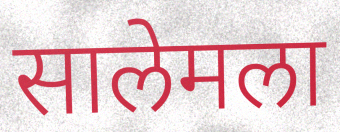
सालेमला